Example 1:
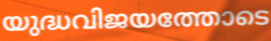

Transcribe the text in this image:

യുദ്ധവിജയത്തോടെ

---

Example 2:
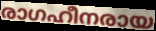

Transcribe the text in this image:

രാഗഹീനരായ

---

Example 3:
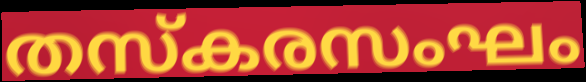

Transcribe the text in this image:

തസ്കരസംഘം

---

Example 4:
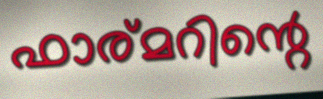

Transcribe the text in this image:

ഫാര്മറിന്റെ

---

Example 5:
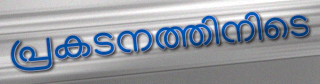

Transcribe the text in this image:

പ്രകടനത്തിനിടെ